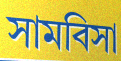
সামবিসা